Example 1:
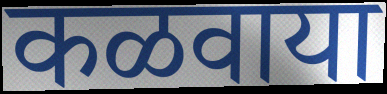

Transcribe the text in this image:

कळवाया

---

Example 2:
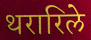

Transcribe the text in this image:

थरारिले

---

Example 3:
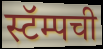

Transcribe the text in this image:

स्टॅम्पची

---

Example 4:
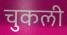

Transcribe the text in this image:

चुकली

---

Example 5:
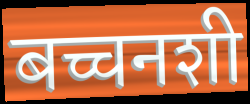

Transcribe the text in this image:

बच्चनशी